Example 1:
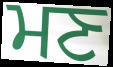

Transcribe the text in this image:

ਮਣ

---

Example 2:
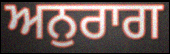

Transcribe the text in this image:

ਅਨੁਰਾਗ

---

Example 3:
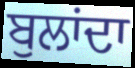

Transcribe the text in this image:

ਬੁਲਾਂਦਾ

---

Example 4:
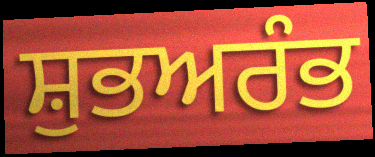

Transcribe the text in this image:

ਸ਼ੁਭਅਰੰਭ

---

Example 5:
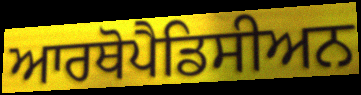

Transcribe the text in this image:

ਆਰਥੋਪੈਡਿਸੀਅਨ